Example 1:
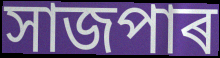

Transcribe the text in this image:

সাজপাৰ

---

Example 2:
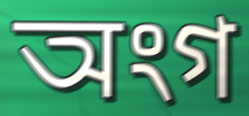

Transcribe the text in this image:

অংগ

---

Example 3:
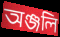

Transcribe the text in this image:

অঞ্জলি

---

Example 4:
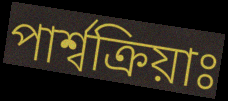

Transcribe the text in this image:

পাৰ্শ্বক্ৰিয়াঃ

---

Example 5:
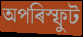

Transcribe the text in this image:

অপৰিস্ফুট